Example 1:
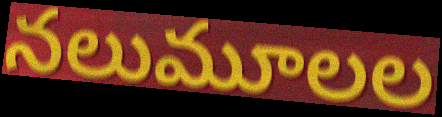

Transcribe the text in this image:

నలుమూలల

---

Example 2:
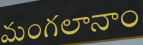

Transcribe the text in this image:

మంగలానాం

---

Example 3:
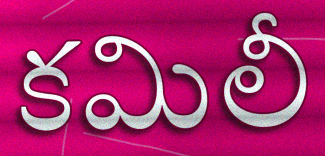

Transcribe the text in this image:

కమిలీ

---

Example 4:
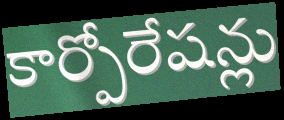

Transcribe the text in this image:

కార్పోరేషన్లు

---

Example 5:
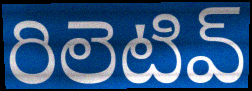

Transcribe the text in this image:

రిలెటివ్